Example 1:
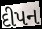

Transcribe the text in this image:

દીપન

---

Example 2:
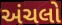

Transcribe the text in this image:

અંચલો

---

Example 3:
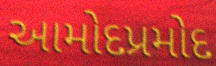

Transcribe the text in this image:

આમોદપ્રમોદ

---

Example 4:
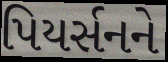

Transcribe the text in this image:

પિયર્સનને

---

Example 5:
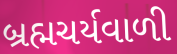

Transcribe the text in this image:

બ્રહ્મચર્યવાળી